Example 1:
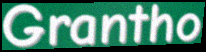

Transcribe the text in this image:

Grantho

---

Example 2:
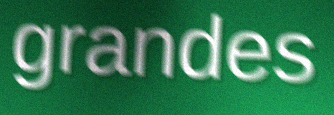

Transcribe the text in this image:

grandes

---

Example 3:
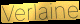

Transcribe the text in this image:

Verlaine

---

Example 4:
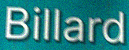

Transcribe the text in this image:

Billard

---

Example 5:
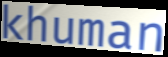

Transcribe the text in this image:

khuman